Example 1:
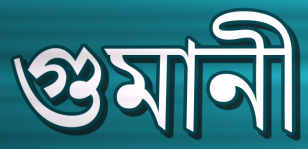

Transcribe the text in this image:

গুমানী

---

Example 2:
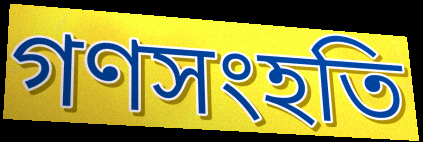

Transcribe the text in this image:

গণসংহতি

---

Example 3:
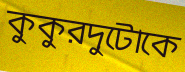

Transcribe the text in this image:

কুকুরদুটোকে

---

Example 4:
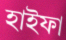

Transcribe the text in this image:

হাইফা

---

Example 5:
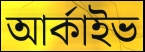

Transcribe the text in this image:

আর্কাইভ